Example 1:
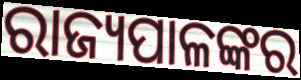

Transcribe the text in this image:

ରାଜ୍ୟପାଳଙ୍କର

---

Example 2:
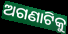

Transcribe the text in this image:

ଅଗଣାଟିକୁ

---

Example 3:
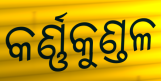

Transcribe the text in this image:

କର୍ଣ୍ଣକୁଣ୍ଡଳ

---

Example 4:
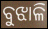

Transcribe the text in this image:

ବୁଝାଳି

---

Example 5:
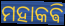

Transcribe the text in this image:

ମହାକଵି